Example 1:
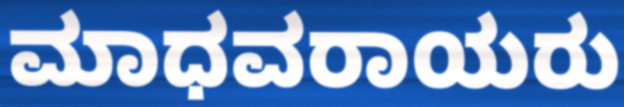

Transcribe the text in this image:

ಮಾಧವರಾಯರು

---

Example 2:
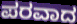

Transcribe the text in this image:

ಪರವಾದ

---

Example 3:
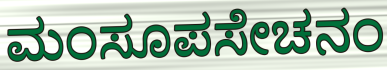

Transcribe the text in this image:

ಮಂಸೂಪಸೇಚನಂ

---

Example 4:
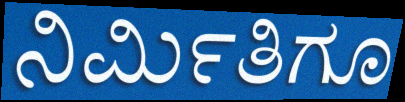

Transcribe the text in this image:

ನಿರ್ಮಿತಿಗೂ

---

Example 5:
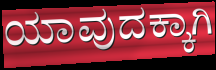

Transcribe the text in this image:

ಯಾವುದಕ್ಕಾಗಿ